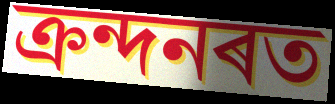
ক্ৰন্দনৰত